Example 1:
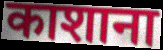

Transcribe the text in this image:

काशाना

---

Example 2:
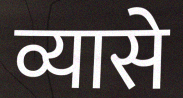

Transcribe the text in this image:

व्यासे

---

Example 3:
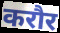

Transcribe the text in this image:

करौर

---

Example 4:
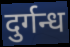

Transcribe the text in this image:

दुर्गन्ध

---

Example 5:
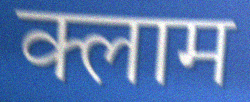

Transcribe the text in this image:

क्लाम